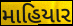
માહિયાર